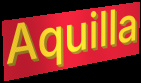
Aquilla